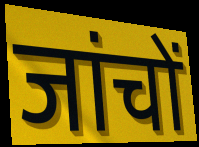
जांचों